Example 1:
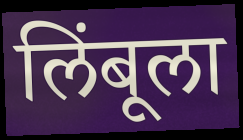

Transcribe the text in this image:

लिंबूला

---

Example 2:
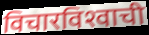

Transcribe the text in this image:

विचारविश्वाची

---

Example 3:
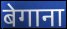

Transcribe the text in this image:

बेगाना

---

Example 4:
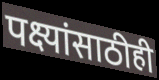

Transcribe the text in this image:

पक्ष्यांसाठीही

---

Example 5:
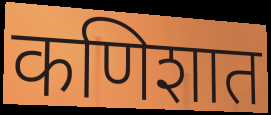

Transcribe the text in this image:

कणिशात